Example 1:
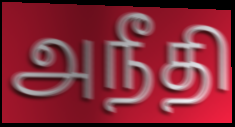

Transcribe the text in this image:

அநீதி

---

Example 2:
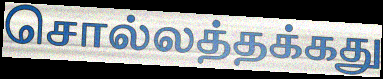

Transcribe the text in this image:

சொல்லத்தக்கது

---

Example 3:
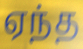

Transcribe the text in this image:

ஏந்த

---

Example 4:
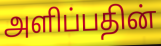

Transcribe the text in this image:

அளிப்பதின்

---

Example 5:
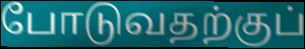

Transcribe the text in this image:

போடுவதற்குப்